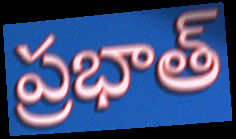
ప్రభాత్